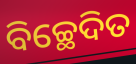
ବିଚ୍ଛେଦିତ